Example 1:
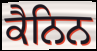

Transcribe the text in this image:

ਕੈਨਿਨ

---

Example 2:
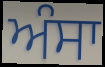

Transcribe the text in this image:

ਅੰਸਾ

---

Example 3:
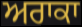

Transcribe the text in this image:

ਅਰਾਕਾ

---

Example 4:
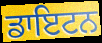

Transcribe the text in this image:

ਡਾਇਟਨ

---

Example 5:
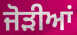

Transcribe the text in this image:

ਜੋਡ਼ੀਆਂ